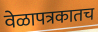
वेळापत्रकातच